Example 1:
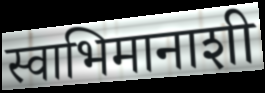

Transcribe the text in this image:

स्वाभिमानाशी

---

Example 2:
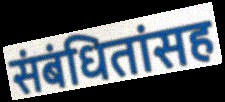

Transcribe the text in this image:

संबंधितांसह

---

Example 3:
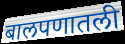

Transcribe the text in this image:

बालपणातली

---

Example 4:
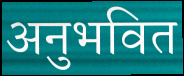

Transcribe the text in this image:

अनुभवित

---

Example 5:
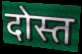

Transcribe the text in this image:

दोस्त